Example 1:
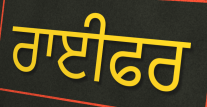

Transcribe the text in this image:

ਰਾਈਫਰ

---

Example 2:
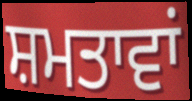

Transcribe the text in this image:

ਸ਼ਮਤਾਵਾਂ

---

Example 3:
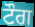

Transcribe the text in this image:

ਟੌਗ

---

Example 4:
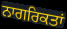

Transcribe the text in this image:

ਨਾਗਰਿਕਤਾਂ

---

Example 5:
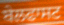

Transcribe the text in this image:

ਬੇਲਫਾਸਟ